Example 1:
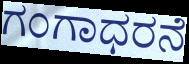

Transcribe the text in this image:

ಗಂಗಾಧರನೆ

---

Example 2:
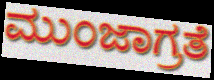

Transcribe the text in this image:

ಮುಂಜಾಗ್ರತೆ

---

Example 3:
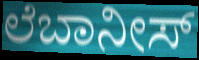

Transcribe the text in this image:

ಲೆಬಾನೀಸ್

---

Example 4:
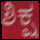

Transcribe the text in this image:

ಶಿಕ್ಷ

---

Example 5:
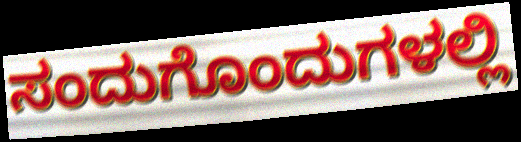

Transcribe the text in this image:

ಸಂದುಗೊಂದುಗಳಲ್ಲಿ